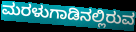
ಮರಳುಗಾಡಿನಲ್ಲಿರುವ